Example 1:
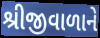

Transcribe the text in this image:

શ્રીજીવાળાને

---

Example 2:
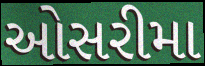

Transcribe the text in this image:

ઓસરીમા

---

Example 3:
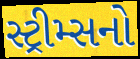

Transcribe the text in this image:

સ્ટ્રીમ્સનો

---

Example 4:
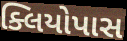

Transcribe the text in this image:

ક્લિયોપાસ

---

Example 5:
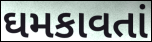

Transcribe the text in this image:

ઘમકાવતાં